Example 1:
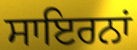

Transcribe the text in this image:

ਸਾਇਰਨਾਂ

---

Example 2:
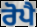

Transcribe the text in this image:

ਰੋਪੈ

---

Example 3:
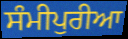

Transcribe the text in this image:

ਸੰਮੀਪੁਰੀਆ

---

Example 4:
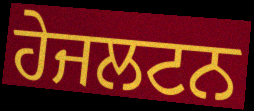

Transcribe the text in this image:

ਹੇਜਲਟਨ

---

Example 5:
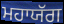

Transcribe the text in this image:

ਮਹਾਯੱਗ